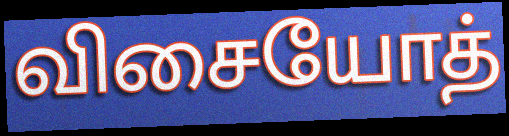
விசையோத்